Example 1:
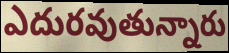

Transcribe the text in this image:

ఎదురవుతున్నారు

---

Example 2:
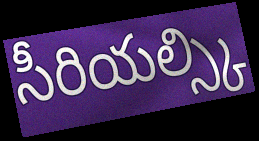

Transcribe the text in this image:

సీరియల్స్కి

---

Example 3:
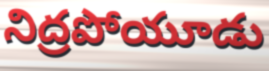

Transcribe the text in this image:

నిద్రపోయూడు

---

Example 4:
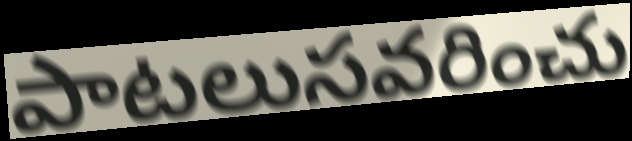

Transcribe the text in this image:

పాటలుసవరించు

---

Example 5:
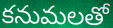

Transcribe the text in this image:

కనుమలతో